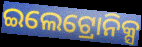
ଇଲେଟ୍ରୋନିକ୍ସ